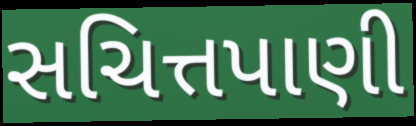
સચિત્તપાણી